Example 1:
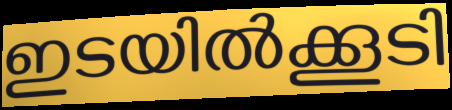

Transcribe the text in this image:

ഇടയിൽക്കൂടി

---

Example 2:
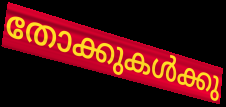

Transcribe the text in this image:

തോക്കുകൾക്കു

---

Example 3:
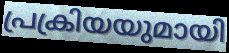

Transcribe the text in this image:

പ്രക്രിയയുമായി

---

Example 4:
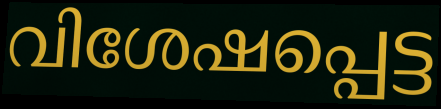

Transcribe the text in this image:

വിശേഷപ്പെട്ട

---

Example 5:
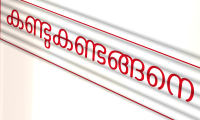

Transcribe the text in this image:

കണ്ടുകണ്ടങ്ങനെ